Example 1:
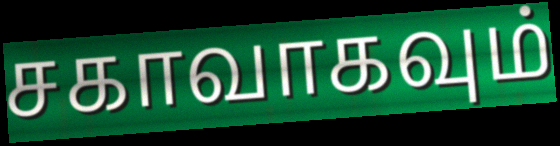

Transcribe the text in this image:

சகாவாகவும்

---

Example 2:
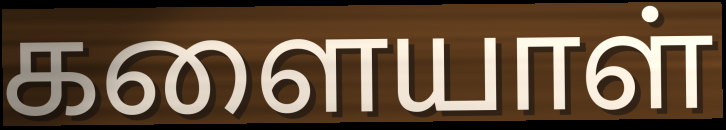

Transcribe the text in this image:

களையாள்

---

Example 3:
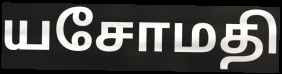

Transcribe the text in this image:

யசோமதி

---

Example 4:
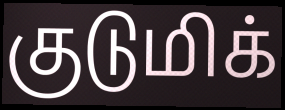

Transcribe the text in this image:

குடுமிக்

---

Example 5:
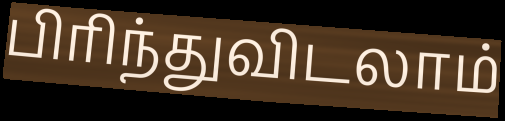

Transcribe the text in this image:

பிரிந்துவிடலாம்